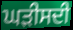
ਘੜੀਸਦੀ